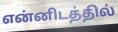
என்னிடத்தில்